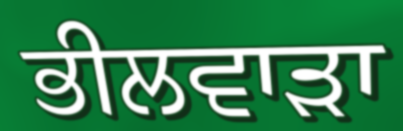
ਭੀਲਵਾੜਾ